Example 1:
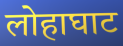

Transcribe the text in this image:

लोहाघाट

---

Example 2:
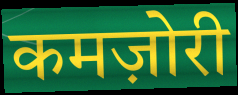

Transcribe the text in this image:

कमज़ोरी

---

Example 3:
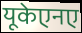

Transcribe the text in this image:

यूकेएनए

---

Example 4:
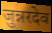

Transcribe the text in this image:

जुन्नरदेव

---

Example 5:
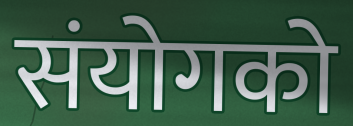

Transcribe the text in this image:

संयोगको